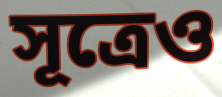
সূত্রেও